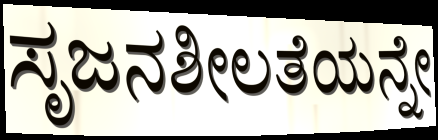
ಸೃಜನಶೀಲತೆಯನ್ನೇ